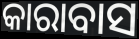
କାରାବାସ